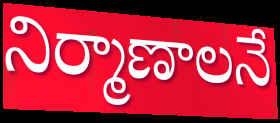
నిర్మాణాలనే